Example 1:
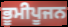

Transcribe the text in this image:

ਭੂਮੀਪੂਜਨ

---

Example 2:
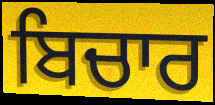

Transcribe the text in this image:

ਬਿਚਾਰ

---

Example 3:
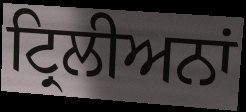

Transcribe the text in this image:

ਟ੍ਰਿਲੀਅਨਾਂ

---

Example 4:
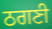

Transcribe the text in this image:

ਠਗਣੀ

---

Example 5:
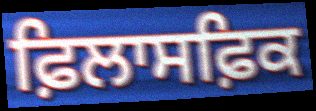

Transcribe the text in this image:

ਫ਼ਿਲਾਸਫ਼ਿਕ